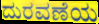
ದುರವಣೆಯ